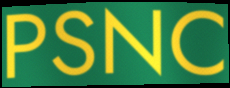
PSNC